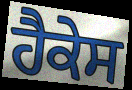
ਹੈਕੇਸ